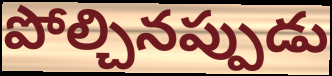
పోల్చినప్పుడు